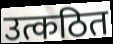
उत्कठित